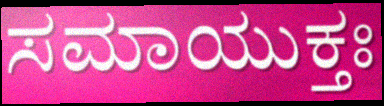
ಸಮಾಯುಕ್ತಃ